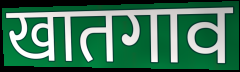
खातगाव